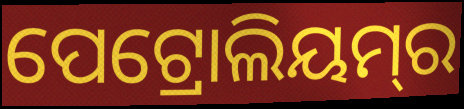
ପେଟ୍ରୋଲିୟମ୍‌ର